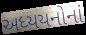
અધ્યયનોનાં